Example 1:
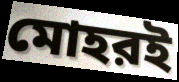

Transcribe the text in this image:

মোহরই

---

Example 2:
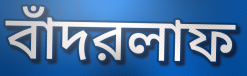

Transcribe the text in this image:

বাঁদরলাফ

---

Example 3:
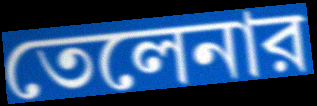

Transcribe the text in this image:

তেলেনার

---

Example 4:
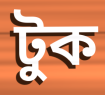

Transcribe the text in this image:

টুক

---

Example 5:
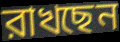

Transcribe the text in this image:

রাখছেন